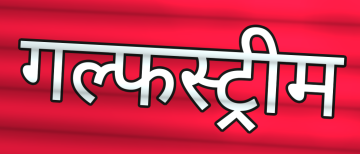
गल्फस्ट्रीम